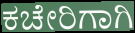
ಕಚೇರಿಗಾಗಿ